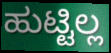
ಹುಟ್ಟಿಲ್ಲ